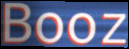
Booz